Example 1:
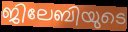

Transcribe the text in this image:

ജിലേബിയുടെ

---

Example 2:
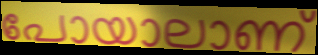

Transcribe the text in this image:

പോയാലാണ്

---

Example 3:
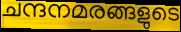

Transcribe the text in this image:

ചന്ദനമരങ്ങളുടെ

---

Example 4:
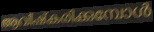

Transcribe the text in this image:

ആവിഷ്‌കരിക്കുമ്പോൾ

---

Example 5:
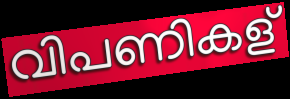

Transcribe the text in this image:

വിപണികള്